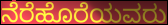
ನೆರೆಹೊರೆಯವರು